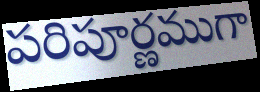
పరిపూర్ణముగా